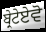
ਬ੍ਰੇਟੇਏਵੋ